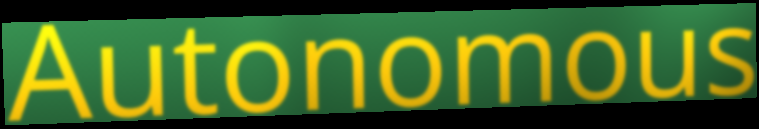
Autonomous